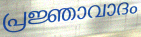
പ്രജ്ഞാവാദം